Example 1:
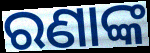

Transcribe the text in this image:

ରଣାଙ୍କ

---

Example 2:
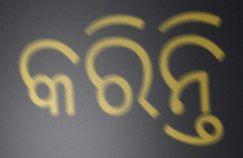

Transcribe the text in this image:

କରିନ୍ତି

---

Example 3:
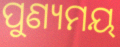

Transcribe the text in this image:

ପୁଣ୍ୟମୟ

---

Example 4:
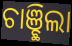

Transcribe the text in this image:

ଚାଞ୍ଛିଲା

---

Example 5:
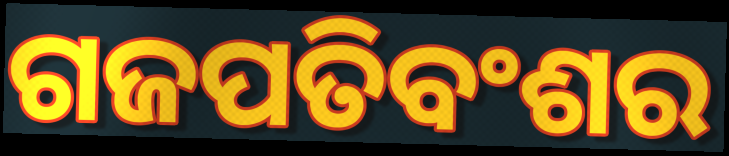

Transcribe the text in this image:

ଗଜପତିବଂଶର